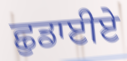
ਛੁਡਾਈਏ